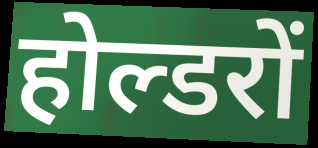
होल्डरों